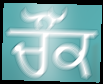
ਚੌੱਕ